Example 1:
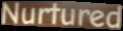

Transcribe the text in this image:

Nurtured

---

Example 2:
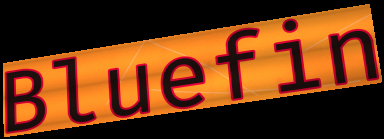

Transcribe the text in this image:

Bluefin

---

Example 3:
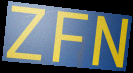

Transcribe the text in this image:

ZFN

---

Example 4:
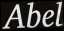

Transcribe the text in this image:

Abel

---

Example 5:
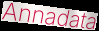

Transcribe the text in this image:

Annadata